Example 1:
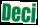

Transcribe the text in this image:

Deci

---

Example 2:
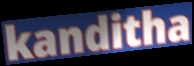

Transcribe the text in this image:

kanditha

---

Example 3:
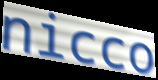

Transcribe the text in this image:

nicco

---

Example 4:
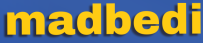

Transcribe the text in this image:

madbedi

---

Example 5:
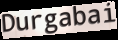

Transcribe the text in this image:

Durgabai